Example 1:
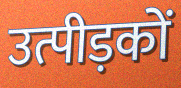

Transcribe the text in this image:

उत्पीड़कों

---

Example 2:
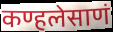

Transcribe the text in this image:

कण्हलेसाणं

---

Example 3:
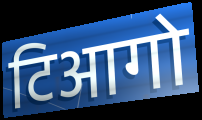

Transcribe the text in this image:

टिआगो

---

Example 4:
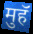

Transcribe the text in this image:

मुहॅ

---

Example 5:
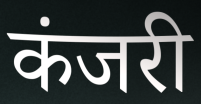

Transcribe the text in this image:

कंजरी